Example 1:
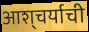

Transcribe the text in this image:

आश्चर्याची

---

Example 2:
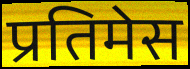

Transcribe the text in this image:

प्रतिमेस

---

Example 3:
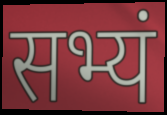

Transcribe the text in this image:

सभ्यं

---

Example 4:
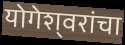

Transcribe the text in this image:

योगेश्वरांचा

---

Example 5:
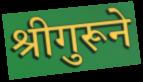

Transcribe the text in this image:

श्रीगुरूने